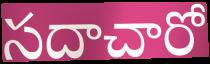
సదాచారో